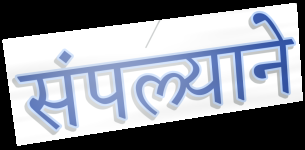
संपल्याने